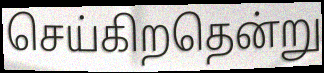
செய்கிறதென்று